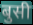
बुसी